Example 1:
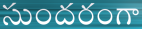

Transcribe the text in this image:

సుందరంగా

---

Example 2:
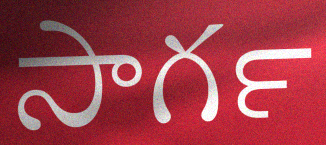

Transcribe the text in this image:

సాగర్‍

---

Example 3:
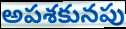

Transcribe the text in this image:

అపశకునపు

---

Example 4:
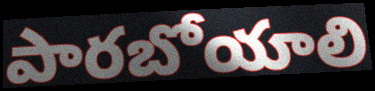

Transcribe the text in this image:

పారబోయాలి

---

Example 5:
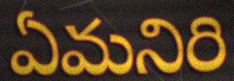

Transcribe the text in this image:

ఏమనిరి